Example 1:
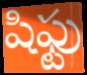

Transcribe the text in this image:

షిఫ్టు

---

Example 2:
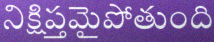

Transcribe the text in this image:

నిక్షిప్తమైపోతుంది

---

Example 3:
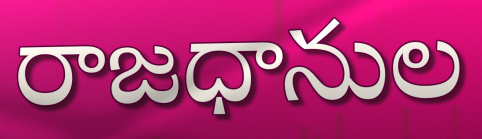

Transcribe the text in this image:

రాజధానుల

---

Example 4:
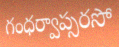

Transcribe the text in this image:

గంధర్వాప్సరసో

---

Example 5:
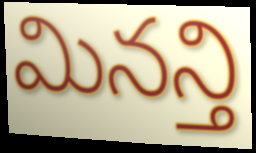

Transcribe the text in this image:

మినన్తి